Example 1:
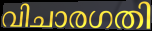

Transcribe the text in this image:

വിചാരഗതി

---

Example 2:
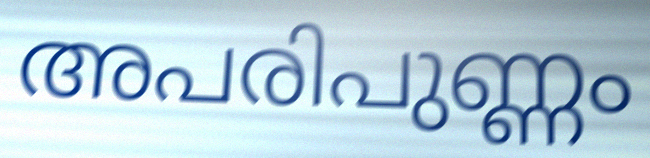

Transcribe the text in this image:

അപരിപുണ്ണം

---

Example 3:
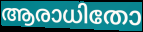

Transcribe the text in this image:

ആരാധിതോ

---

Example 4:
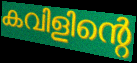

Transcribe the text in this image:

കവിളിന്റെ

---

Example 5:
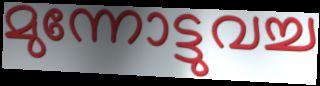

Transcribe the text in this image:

മുന്നോട്ടുവച്ച